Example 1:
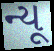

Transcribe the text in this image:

ન્યૂ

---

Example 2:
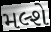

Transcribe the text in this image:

મલ્શે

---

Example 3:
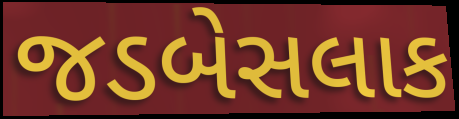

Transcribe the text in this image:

જડબેસલાક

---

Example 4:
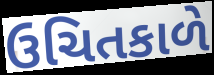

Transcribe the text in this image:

ઉચિતકાળે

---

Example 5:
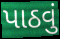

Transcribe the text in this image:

પાઠવું